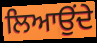
ਲਿਆਉਂਦੇ